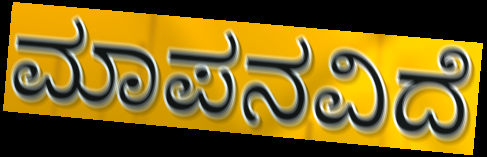
ಮಾಪನವಿದೆ